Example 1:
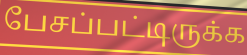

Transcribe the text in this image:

பேசப்பட்டிருக்க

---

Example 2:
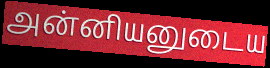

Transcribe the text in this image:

அன்னியனுடைய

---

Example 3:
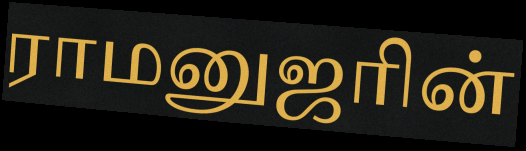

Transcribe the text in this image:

ராமனுஜரின்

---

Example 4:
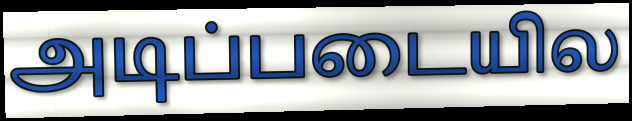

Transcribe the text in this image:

அடிப்படையில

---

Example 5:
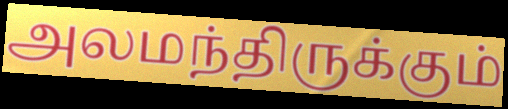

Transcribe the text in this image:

அலமந்திருக்கும்